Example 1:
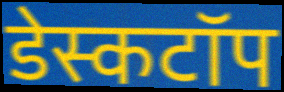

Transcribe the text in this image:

डेस्कटॉप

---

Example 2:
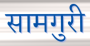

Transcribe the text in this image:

सामगुरी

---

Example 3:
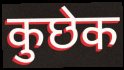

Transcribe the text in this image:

कुछेक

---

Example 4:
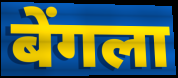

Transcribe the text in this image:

बेंगला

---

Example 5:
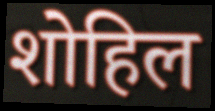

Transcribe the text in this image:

शोहिल